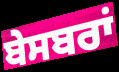
ਬੇਸਬਰਾਂ